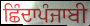
ਛਿੰਦਾਪੰਜਾਬੀ